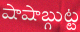
షాషాబ్గుట్ట